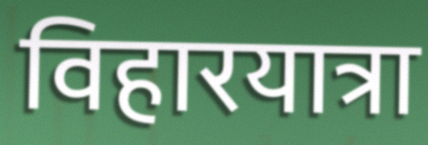
विहारयात्रा